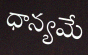
ధాన్యమే